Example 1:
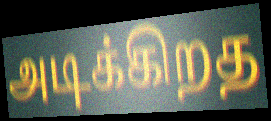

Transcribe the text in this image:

அடிக்கிறத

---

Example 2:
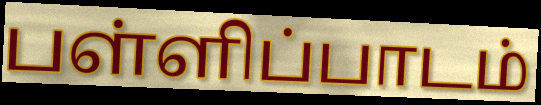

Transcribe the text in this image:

பள்ளிப்பாடம்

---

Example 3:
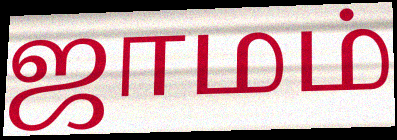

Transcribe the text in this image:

ஜாமம்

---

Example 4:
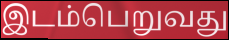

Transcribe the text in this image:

இடம்பெறுவது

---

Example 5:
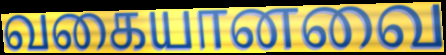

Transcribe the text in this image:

வகையானவை